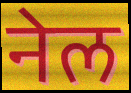
नेल